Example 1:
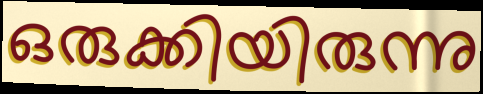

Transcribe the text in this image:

ഒരുക്കിയിരുന്നു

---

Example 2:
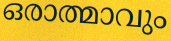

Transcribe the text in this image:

ഒരാത്മാവും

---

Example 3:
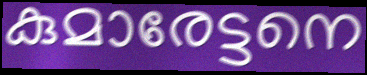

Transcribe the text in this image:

കുമാരേട്ടനെ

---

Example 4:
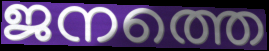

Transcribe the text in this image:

ജനത്തെ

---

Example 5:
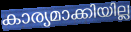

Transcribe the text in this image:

കാര്യമാക്കിയില്ല